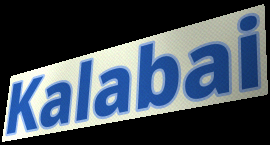
Kalabai